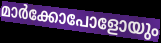
മാർക്കോപോളോയും